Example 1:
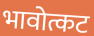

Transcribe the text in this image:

भावोत्कट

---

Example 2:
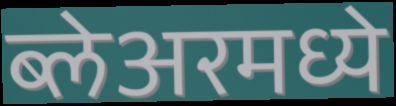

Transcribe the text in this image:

ब्लेअरमध्ये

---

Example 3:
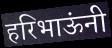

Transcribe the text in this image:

हरिभाऊंनी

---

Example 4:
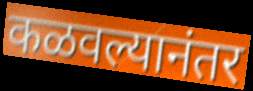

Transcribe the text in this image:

कळवल्यानंतर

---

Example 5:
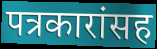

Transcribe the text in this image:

पत्रकारांसह